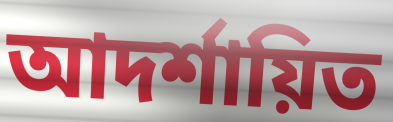
আদর্শায়িত